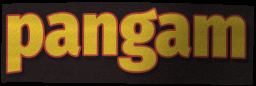
pangam